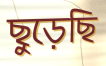
ছুড়েছি